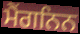
ਮੈਂਗਨਿਨ